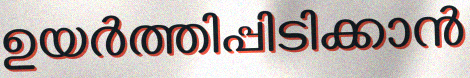
ഉയർത്തിപ്പിടിക്കാൻ